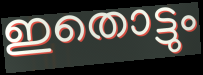
ഇതൊട്ടും